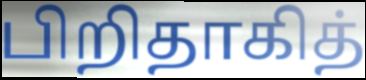
பிறிதாகித்